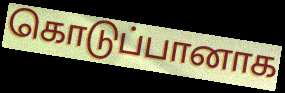
கொடுப்பானாக